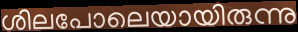
ശിലപോലെയായിരുന്നു